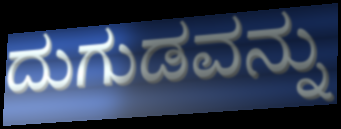
ದುಗುಡವನ್ನು